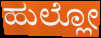
ಹುಲ್ಲೋ